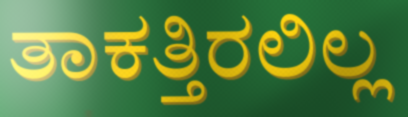
ತಾಕತ್ತಿರಲಿಲ್ಲ